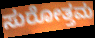
ಸುರೋತ್ತಮ